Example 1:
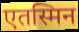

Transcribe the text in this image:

एतस्मिन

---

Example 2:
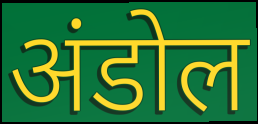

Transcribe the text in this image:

अंडोल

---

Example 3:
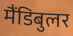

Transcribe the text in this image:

मैंडिबुलर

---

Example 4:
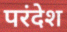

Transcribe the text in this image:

परंदेश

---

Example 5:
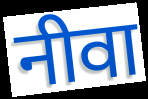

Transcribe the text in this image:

नीवा